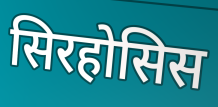
सिरहोसिस